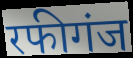
रफीगंज